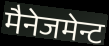
मैनेजमेन्ट